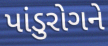
પાંડુરોગને